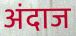
अंदाज